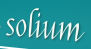
solium